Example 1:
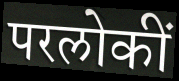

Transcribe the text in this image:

परलोकीं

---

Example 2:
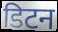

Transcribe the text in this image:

डिटन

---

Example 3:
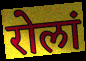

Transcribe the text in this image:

रोलां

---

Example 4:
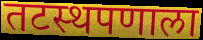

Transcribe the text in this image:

तटस्थपणाला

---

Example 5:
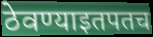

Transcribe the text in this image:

ठेवण्याइतपतच